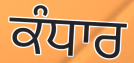
ਕੰਧਾਰ